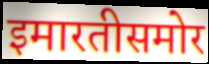
इमारतीसमोर